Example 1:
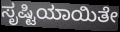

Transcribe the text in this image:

ಸೃಷ್ಟಿಯಾಯಿತೇ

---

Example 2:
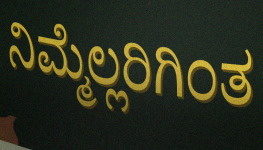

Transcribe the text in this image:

ನಿಮ್ಮೆಲ್ಲರಿಗಿಂತ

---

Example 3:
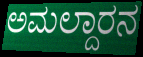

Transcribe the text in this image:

ಅಮಲ್ದಾರನ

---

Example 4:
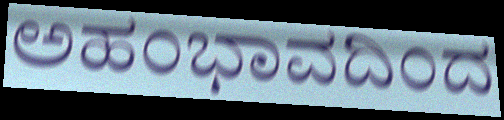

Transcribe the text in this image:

ಅಹಂಭಾವದಿಂದ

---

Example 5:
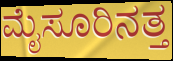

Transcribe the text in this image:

ಮೈಸೂರಿನತ್ತ